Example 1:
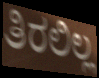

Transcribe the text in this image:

ತಿರಲಿಲ್ಲ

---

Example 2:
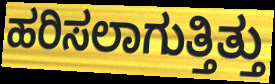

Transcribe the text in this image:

ಹರಿಸಲಾಗುತ್ತಿತ್ತು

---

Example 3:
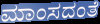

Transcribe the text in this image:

ಮಾಂಸದಂತೆ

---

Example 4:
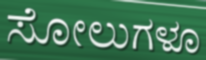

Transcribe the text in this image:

ಸೋಲುಗಳೂ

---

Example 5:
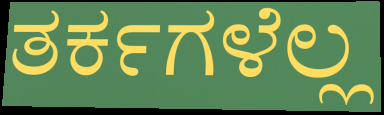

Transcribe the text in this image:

ತರ್ಕಗಳೆಲ್ಲ